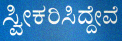
ಸ್ವೀಕರಿಸಿದ್ದೇವೆ